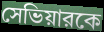
সেভিয়ারকে